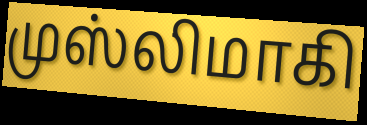
முஸ்லிமாகி